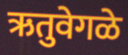
ऋतुवेगळे